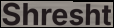
Shresht